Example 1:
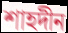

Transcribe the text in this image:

শাহদীন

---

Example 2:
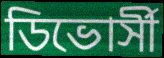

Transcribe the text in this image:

ডিভোর্সী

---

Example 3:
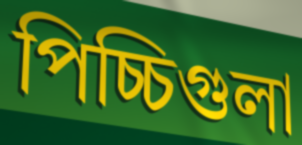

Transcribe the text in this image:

পিচ্চিগুলা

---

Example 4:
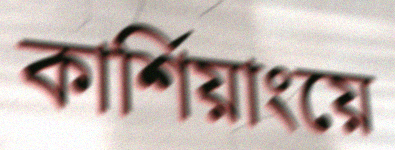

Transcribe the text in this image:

কার্শিয়াংয়ে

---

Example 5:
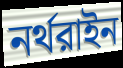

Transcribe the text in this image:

নর্থরাইন